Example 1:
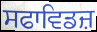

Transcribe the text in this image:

ਸਫਾਵਿਡਜ਼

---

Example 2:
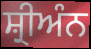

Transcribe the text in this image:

ਸ਼੍ਰੀਅੰਨ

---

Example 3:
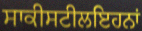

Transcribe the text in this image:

ਸਾਕੀਸਟੀਲਇਹਨਾਂ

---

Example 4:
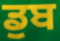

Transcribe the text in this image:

ਡੁਬ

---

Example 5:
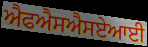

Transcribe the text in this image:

ਐਫਐਸਐਸਏਆਈ